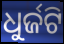
ଧୁର୍ଜଟି